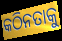
କଠିନତାକୁ